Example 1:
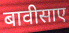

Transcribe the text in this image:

बावीसाए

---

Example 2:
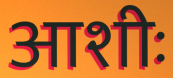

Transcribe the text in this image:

आशीः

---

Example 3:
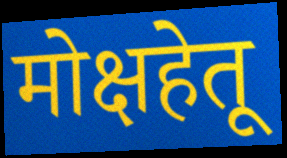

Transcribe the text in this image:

मोक्षहेतू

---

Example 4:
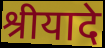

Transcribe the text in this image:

श्रीयादे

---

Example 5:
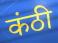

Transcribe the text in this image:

कंठी